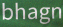
bhagn